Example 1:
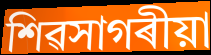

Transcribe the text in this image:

শিৱসাগৰীয়া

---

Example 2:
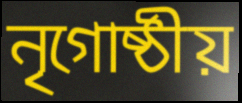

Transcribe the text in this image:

নৃগোষ্ঠীয়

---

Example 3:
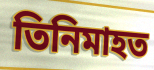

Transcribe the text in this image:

তিনিমাহত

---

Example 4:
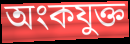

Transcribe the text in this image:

অংকযুক্ত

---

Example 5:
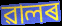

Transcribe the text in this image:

ৱালৰ